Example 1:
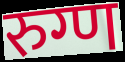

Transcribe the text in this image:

रुग्ण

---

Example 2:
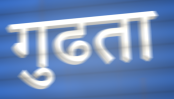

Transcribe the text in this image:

गुढता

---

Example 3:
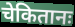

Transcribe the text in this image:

चेकितानः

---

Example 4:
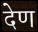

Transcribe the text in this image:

देण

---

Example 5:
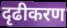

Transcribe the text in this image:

दृढीकरण